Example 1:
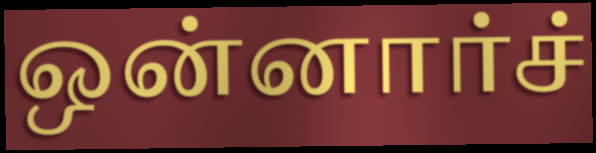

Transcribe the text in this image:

ஒன்னார்ச்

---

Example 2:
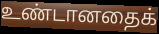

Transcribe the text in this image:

உண்டானதைக்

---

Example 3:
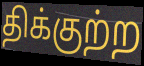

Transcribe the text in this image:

திக்குற்ற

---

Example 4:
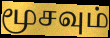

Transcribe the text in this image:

மூசவும்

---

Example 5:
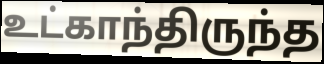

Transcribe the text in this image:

உட்காந்திருந்த